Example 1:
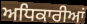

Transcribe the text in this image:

ਅਧਿਕਾਰੀਆਂ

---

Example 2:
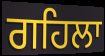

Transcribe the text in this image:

ਗਹਿਲਾ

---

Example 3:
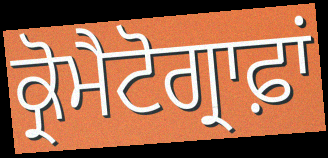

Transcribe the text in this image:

ਕ੍ਰੋਮੈਟੋਗ੍ਰਾਫ਼ਾਂ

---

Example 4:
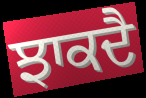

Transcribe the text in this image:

ਝਾਕਦੈ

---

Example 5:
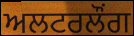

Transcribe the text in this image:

ਅਲਟਰਲੌਂਗ